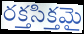
రక్తసిక్తమై